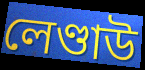
লেণ্ডাউ